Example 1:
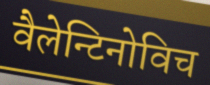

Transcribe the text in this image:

वैलेन्टिनोविच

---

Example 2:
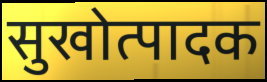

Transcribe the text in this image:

सुखोत्पादक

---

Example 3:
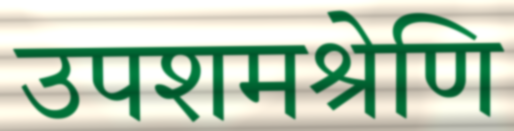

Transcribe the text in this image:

उपशमश्रेणि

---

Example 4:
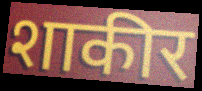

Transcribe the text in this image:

शाकीर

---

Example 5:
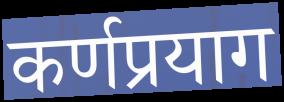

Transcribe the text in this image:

कर्णप्रयाग